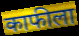
काफीला